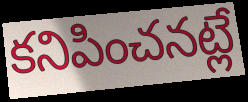
కనిపించనట్లే